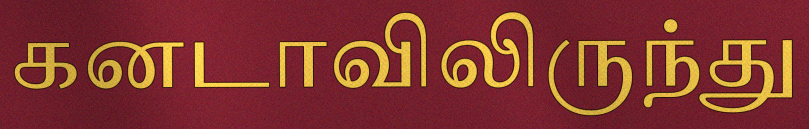
கனடாவிலிருந்து